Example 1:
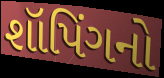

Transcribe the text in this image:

શૉપિંગનો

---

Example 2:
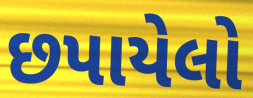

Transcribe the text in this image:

છપાયેલો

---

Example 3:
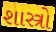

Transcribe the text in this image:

શાસ્ત્રો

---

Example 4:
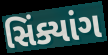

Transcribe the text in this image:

સિંક્યાંગ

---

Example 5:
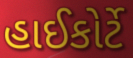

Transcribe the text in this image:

હાઈકોર્ટે